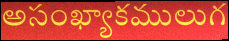
అసంఖ్యాకములుగ